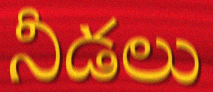
నీడలు